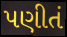
પણીતં